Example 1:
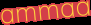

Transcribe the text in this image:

ammaa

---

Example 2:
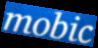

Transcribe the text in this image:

mobic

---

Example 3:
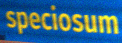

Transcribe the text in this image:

speciosum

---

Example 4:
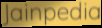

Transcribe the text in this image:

Jainpedia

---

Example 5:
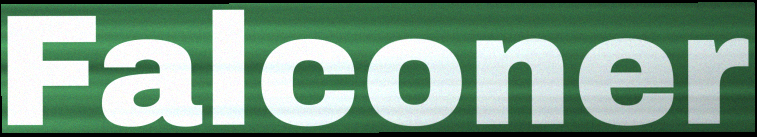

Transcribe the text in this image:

Falconer